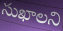
సుఖాలని